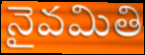
నైవమితి